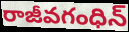
రాజీవగంధిన్